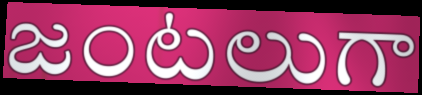
జంటలుగా